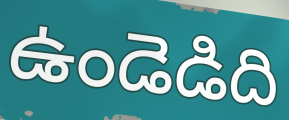
ఉండెడిది